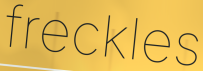
freckles